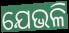
ଯେଭଳି